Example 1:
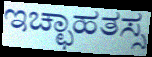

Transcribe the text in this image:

ಇಚ್ಛಾಹತಸ್ಸ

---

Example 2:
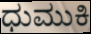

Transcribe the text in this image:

ಧುಮುಕಿ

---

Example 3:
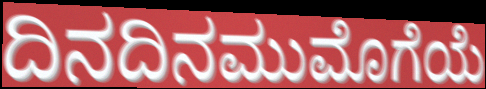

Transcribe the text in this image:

ದಿನದಿನಮುಮೊಗೆಯೆ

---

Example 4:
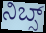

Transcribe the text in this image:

ನಿಬ್ಸ್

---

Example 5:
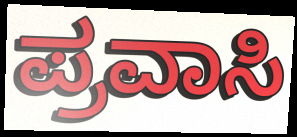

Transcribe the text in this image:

ಪ್ರವಾಸಿ